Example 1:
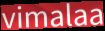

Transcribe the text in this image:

vimalaa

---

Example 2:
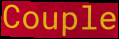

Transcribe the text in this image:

Couple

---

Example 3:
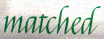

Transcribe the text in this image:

matched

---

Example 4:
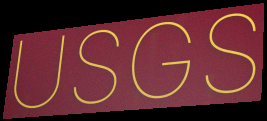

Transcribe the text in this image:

USGS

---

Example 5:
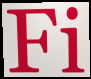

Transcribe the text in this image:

Fi